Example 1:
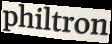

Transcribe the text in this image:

philtron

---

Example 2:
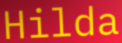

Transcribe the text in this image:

Hilda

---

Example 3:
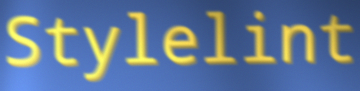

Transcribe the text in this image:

Stylelint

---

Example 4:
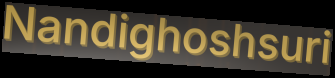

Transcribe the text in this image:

Nandighoshsuri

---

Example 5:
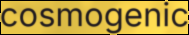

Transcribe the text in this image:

cosmogenic